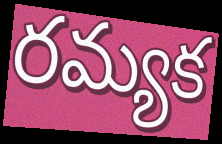
రమ్యక